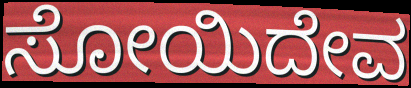
ಸೋಯಿದೇವ